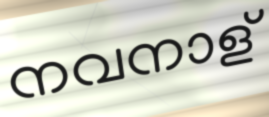
നവനാള്